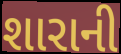
શારાની